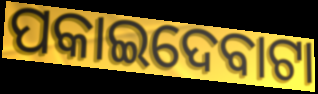
ପକାଇଦେବାଟା